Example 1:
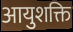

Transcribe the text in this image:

आयुशक्ति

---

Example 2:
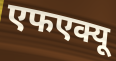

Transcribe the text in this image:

एफएक्यू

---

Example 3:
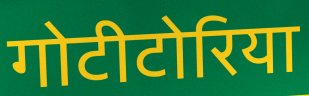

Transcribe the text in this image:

गोटीटोरिया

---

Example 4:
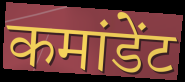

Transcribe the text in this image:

कमांडेंट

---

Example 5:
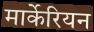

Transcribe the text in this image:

मार्केरियन